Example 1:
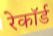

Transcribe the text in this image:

रेकॉर्ड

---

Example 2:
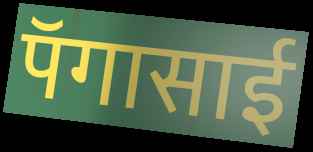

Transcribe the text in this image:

पॅगासाई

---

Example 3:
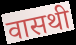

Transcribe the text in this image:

वासथी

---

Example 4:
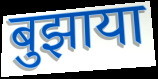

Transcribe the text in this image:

बुझाया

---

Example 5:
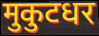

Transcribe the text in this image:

मुकुटधर